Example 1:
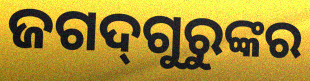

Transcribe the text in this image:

ଜଗଦ୍‌ଗୁରୁଙ୍କର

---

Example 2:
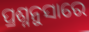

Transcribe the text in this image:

ପ୍ରଶ୍ନନୁସାରେ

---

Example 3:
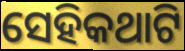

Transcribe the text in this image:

ସେହିକଥାଟି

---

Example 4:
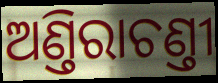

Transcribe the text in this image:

ଅଣ୍ତିରାଚଣ୍ତୀ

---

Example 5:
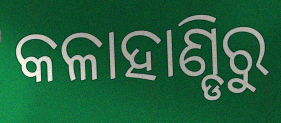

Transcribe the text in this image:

କଳାହାଣ୍ଡିରୁ